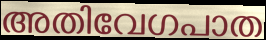
അതിവേഗപാത